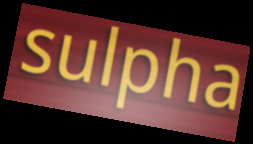
sulpha